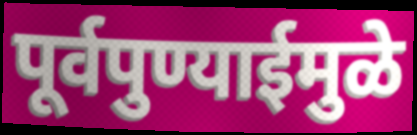
पूर्वपुण्याईमुळे